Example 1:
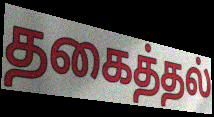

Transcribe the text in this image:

தகைத்தல்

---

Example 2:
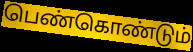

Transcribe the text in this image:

பெண்கொண்டும்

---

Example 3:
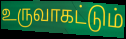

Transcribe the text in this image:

உருவாகட்டும்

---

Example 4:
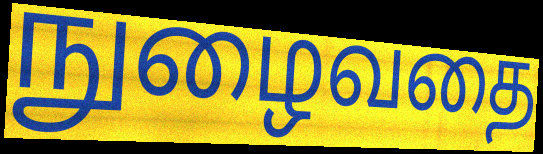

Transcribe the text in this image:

நுழைவதை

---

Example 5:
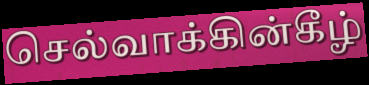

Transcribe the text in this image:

செல்வாக்கின்கீழ்